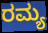
ರಮ್ಯ